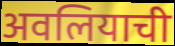
अवलियाची